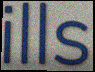
ills